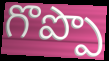
గొప్పొ